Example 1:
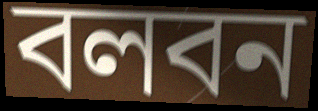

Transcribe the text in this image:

বলবন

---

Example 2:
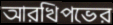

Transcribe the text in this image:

আরখিপভের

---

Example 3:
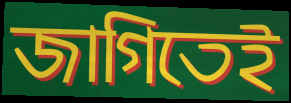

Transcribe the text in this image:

জাগিতেই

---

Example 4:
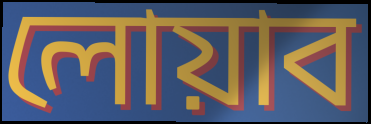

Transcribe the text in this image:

লোয়াব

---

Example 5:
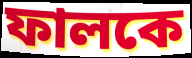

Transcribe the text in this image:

ফালকে